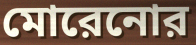
মোরেনোর